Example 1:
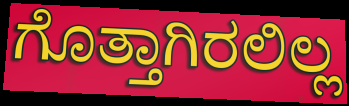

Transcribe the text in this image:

ಗೊತ್ತಾಗಿರಲಿಲ್ಲ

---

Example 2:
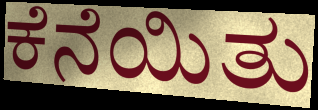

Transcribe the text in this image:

ಕೆನೆಯಿತು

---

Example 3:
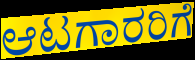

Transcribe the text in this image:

ಆಟಗಾರರಿಗೆ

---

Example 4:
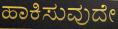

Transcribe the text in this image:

ಹಾಕಿಸುವುದೇ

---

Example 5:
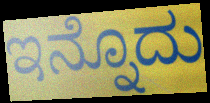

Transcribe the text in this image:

ಇನ್ನೊದು